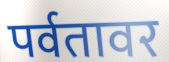
पर्वतावर